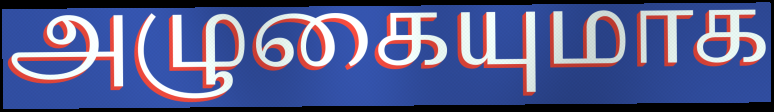
அழுகையுமாக